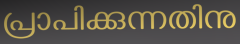
പ്രാപിക്കുന്നതിനു